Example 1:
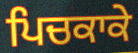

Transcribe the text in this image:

ਪਿਚਕਾਕੇ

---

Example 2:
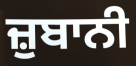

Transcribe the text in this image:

ਜ਼ੁਬਾਨੀ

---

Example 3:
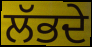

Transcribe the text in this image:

ਲੱਭਦੇ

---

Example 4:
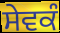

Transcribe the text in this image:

ਸੇਵਕੰ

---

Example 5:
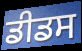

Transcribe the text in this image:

ਡੀਡਸ